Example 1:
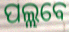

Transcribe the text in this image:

ପଲ୍ଲବେ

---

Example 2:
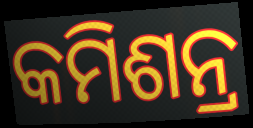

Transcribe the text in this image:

କମିଶନ୍ର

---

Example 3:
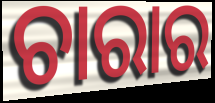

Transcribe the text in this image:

ଚାରାର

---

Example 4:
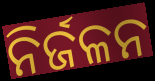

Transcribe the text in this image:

ନିର୍ଜଳନ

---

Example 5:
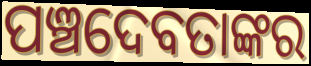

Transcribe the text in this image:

ପଞ୍ଚଦେବତାଙ୍କର